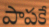
పాపకే